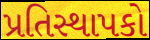
પ્રતિસ્થાપકો